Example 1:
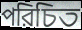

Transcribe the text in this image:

পরিচিত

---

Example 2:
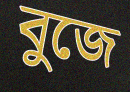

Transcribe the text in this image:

বুজে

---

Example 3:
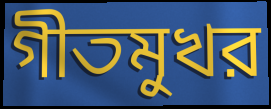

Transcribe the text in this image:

গীতমুখর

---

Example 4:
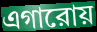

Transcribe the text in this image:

এগারোয়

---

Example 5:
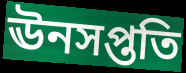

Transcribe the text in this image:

ঊনসপ্ততি